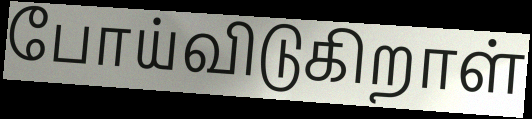
போய்விடுகிறாள்